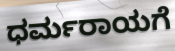
ಧರ್ಮರಾಯಗೆ